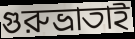
গুৰুভ্ৰাতাই